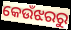
କେଉଁଝରରୁ